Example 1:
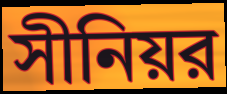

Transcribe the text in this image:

সীনিয়র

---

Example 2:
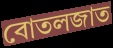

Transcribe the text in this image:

বোতলজাত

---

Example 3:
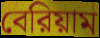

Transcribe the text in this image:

বেরিয়াম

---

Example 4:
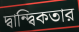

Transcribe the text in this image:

দ্বান্দ্বিকতার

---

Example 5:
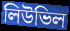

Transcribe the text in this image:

লিউভিল